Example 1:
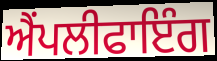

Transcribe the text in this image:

ਐਂਪਲੀਫਾਇੰਗ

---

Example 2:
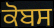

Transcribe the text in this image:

ਕੋਬਸ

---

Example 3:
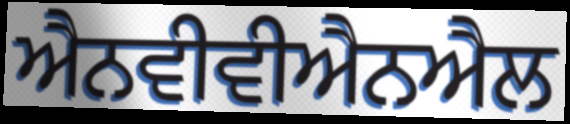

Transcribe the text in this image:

ਐਨਵੀਵੀਐਨਐਲ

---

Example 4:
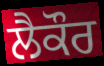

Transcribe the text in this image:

ਲੈਕੌਰ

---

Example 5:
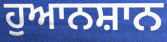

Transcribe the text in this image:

ਹੁਆਨਸ਼ਾਨ